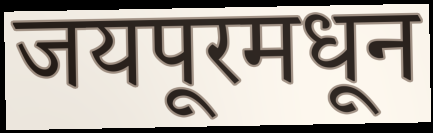
जयपूरमधून